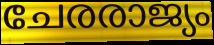
ചേരരാജ്യം